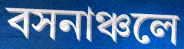
বসনাঞ্চলে